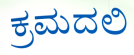
ಕ್ರಮದಲಿ